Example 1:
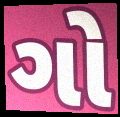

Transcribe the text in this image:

ગો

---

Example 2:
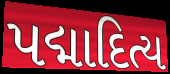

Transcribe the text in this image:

પદ્માદિત્ય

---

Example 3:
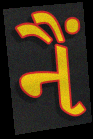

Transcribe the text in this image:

નૈં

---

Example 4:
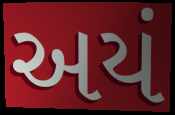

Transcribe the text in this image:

અયં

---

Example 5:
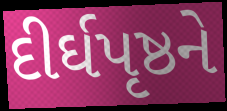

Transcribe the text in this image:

દીર્ઘપૃષ્ઠને